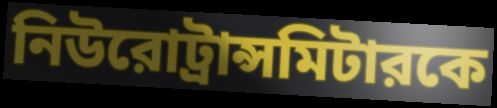
নিউরোট্রান্সমিটারকে